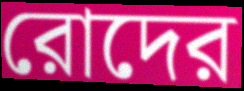
রোদের